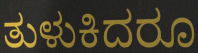
ತುಳುಕಿದರೂ